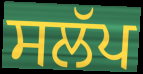
ਸਲੱਪ